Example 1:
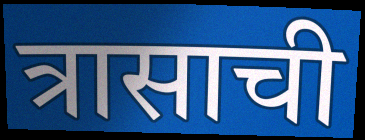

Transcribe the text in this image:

त्रासाची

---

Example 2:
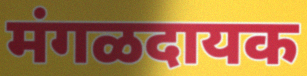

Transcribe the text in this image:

मंगळदायक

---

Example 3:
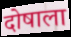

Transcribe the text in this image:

दोषाला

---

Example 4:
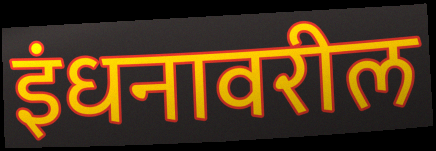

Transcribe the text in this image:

इंधनावरील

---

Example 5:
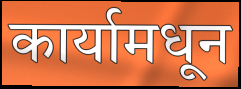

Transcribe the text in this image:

कार्यामधून